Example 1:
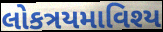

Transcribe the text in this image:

લોકત્રયમાવિશ્ય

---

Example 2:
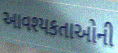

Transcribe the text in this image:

આવશ્યકતાઓની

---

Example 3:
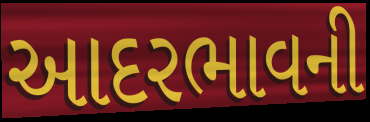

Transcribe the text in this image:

આદરભાવની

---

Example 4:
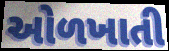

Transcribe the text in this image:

ઓળખાતી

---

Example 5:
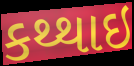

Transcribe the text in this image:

કથ્થાઇ